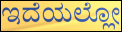
ಇದೆಯಲ್ಲೋ